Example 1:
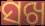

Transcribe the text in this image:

ସଖ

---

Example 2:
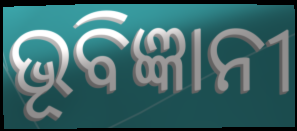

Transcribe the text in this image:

ଭୂବିଜ୍ଞାନୀ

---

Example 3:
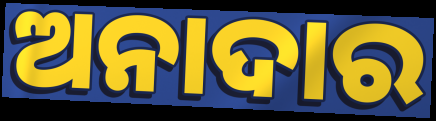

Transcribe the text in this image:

ଅନାଦାର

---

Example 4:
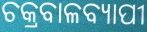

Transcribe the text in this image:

ଚକ୍ରବାଳବ୍ୟାପୀ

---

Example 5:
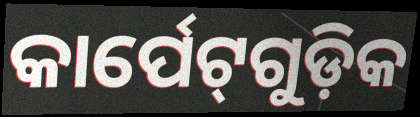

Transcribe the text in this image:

କାର୍ପେଟ୍‌ଗୁଡ଼ିକ